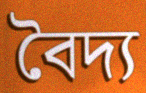
বৈদ্য